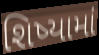
શિષ્યામાં